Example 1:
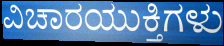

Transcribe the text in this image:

ವಿಚಾರಯುಕ್ತಿಗಳು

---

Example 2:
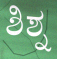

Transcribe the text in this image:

ಶಿಶ್ನ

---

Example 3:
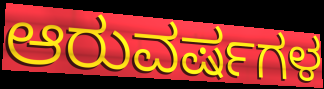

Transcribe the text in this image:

ಆರುವರ್ಷಗಳ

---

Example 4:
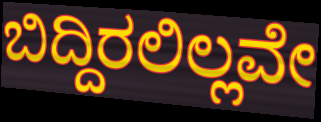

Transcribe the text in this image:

ಬಿದ್ದಿರಲಿಲ್ಲವೇ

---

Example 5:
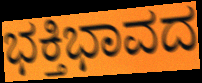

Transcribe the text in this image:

ಭಕ್ತಿಭಾವದ